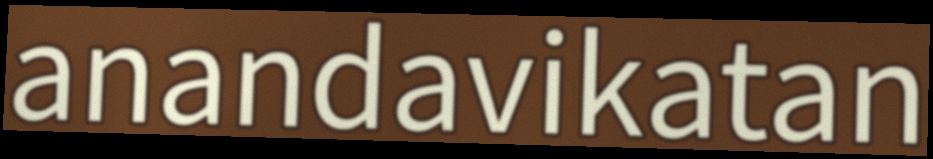
anandavikatan